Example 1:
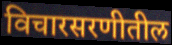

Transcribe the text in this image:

विचारसरणीतील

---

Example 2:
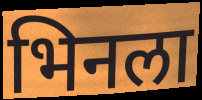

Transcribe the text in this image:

भिनला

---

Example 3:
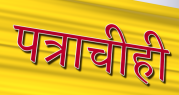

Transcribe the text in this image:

पत्राचीही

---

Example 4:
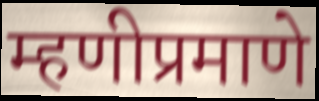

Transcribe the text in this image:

म्हणीप्रमाणे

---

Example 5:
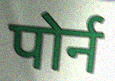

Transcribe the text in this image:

पोर्न